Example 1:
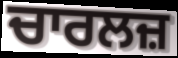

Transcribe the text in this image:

ਚਾਰਲਜ਼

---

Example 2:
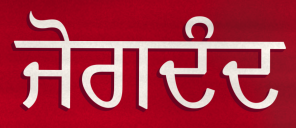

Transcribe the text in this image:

ਜੋਗਦੰਦ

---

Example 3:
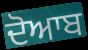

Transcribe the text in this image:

ਦੋਆਬ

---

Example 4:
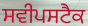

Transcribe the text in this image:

ਸਵੀਪਸਟੈਕ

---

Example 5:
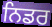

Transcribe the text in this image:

ਨਿਡਰ